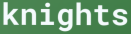
knights